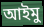
আইমু